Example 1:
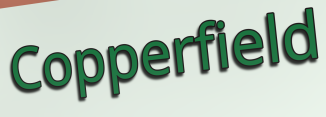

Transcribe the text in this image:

Copperfield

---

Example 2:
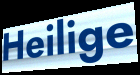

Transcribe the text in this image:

Heilige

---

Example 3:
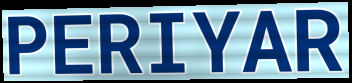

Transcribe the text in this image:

PERIYAR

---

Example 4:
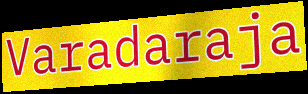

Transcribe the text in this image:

Varadaraja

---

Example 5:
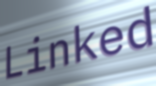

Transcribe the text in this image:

Linked